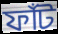
ফাঁট